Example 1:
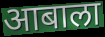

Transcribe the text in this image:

आबाला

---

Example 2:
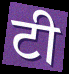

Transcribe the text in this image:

टी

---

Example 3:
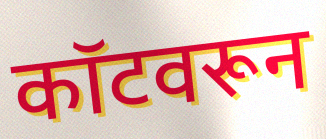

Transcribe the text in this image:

कॉटवरून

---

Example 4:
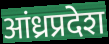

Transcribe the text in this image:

आंध्रप्रदेश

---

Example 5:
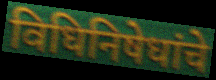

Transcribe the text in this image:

विधिनिषेधांचे